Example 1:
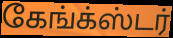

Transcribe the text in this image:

கேங்க்ஸ்டர்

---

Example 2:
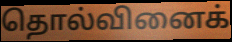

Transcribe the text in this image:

தொல்வினைக்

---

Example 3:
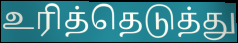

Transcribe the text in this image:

உரித்தெடுத்து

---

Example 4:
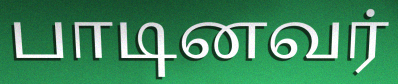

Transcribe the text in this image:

பாடினவர்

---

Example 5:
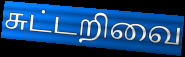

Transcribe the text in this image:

சுட்டறிவை